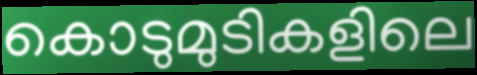
കൊടുമുടികളിലെ